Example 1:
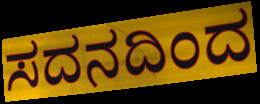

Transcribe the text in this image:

ಸದನದಿಂದ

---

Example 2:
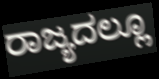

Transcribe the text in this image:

ರಾಜ್ಯದಲ್ಲೂ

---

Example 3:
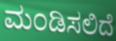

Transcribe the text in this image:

ಮಂಡಿಸಲಿದೆ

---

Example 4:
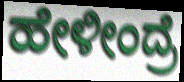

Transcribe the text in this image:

ಹೇಳೀಂದ್ರೆ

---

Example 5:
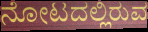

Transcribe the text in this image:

ನೋಟದಲ್ಲಿರುವ